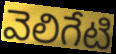
వెలిగేటి